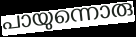
പായുന്നൊരു